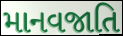
માનવજાતિ